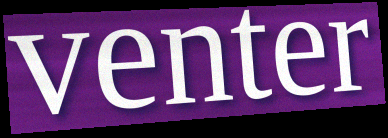
venter